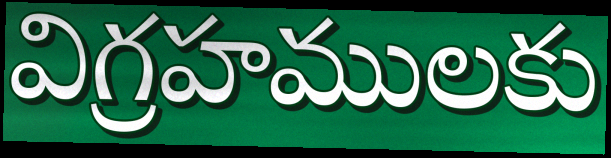
విగ్రహములకు